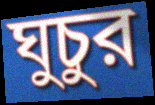
ঘুচুর